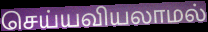
செய்யவியலாமல்